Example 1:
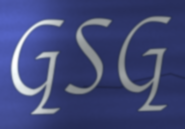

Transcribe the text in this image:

GSG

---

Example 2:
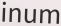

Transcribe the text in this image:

inum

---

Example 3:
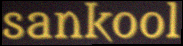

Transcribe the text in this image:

sankool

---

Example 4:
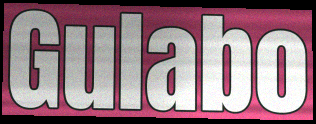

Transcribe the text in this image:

Gulabo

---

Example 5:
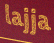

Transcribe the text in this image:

lajja